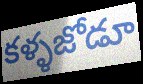
కళ్ళజోడూ